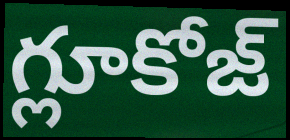
గ్లూకోజ్